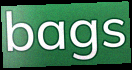
bags